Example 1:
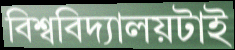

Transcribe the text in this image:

বিশ্ববিদ্যালয়টাই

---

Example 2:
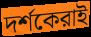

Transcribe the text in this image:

দর্শকেরাই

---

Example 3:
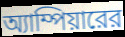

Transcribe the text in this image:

অ্যাম্পিয়ারের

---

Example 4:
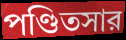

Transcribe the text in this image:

পণ্ডিতসার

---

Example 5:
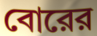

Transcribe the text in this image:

বোরের